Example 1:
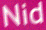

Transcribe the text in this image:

Nid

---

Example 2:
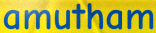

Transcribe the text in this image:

amutham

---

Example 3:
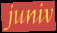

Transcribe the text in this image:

juniv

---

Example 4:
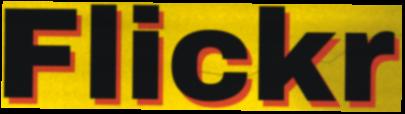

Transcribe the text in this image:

Flickr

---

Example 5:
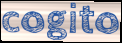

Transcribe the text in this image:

cogito